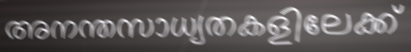
അനന്തസാധ്യതകളിലേക്ക്